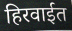
हिरवाईत